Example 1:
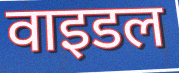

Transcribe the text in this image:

वाइडल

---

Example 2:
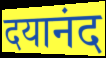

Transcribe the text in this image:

दयानंद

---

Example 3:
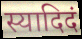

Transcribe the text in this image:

स्यादिदं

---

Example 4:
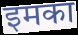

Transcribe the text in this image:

इमका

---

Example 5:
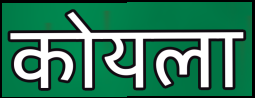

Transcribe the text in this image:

कोयला